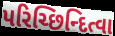
પરિચ્છિન્દિત્વા